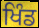
ਖਿੰਡ